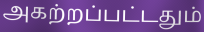
அகற்றப்பட்டதும்